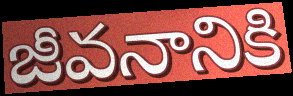
జీవనానికి